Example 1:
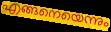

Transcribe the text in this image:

എങ്ങനെയെന്നും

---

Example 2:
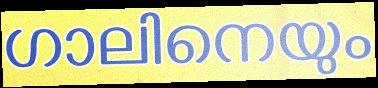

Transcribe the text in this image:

ഗാലിനെയും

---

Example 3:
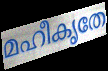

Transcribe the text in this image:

മഹീകൃതേ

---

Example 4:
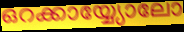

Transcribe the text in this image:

ഒറക്കായ്യ്യോലോ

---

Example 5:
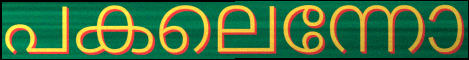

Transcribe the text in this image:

പകലെന്നോ